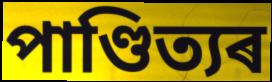
পাণ্ডিত্যৰ